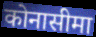
कोनासीमा